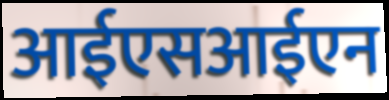
आईएसआईएन